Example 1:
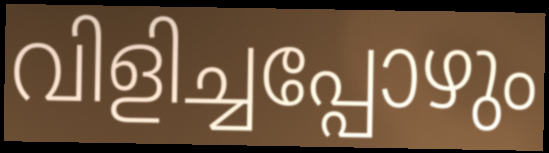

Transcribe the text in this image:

വിളിച്ചപ്പോഴും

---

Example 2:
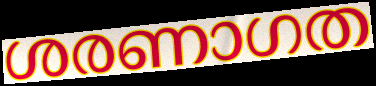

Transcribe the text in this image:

ശരണാഗത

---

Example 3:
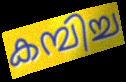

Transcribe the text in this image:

കമ്പിച്ച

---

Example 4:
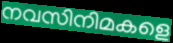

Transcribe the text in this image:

നവസിനിമകളെ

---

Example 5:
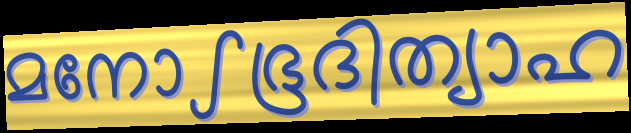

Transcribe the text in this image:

മനോഽഭൂദിത്യാഹ